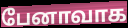
பேனாவாக